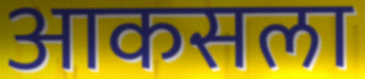
आकसला